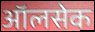
ऑलसेक